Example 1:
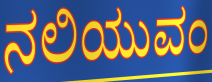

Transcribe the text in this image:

ನಲಿಯುವಂ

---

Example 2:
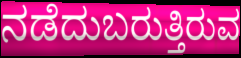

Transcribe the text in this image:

ನಡೆದುಬರುತ್ತಿರುವ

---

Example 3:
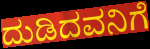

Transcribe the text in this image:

ದುಡಿದವನಿಗೆ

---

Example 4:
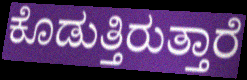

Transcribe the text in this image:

ಕೊಡುತ್ತಿರುತ್ತಾರೆ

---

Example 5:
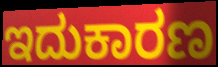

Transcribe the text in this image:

ಇದುಕಾರಣ